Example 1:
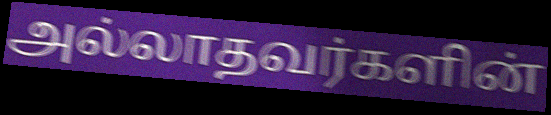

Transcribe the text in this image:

அல்லாதவர்களின்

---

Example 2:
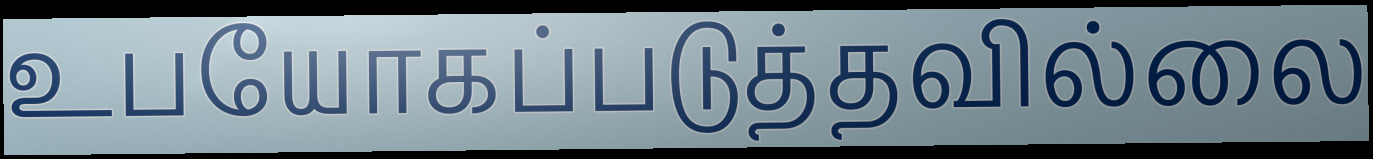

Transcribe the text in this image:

உபயோகப்படுத்தவில்லை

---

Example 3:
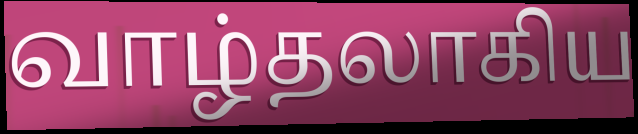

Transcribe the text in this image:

வாழ்தலாகிய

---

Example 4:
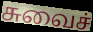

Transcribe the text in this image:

சுவைச்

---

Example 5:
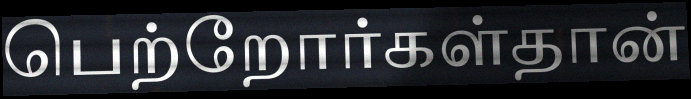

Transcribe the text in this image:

பெற்றோர்கள்தான்